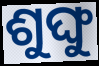
ଶୁଙ୍ଘୁ